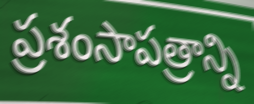
ప్రశంసాపత్రాన్ని